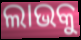
ଲାଭକୁ